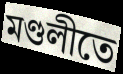
মণ্ডলীতে